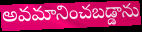
అవమానించబడ్డాను